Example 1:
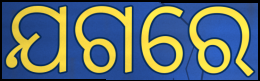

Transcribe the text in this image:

ଯଗରେ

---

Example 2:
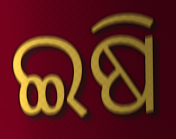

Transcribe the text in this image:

ଇଷି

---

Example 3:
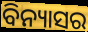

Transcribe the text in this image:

ବିନ୍ୟାସର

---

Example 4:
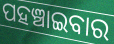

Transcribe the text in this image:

ପହଞ୍ଚାଇବାର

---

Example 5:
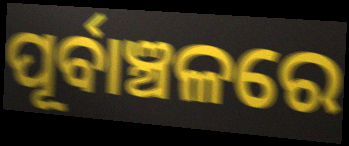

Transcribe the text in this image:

ପୂର୍ବାଞ୍ଚଳରେ